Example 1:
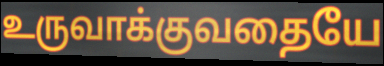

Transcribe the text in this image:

உருவாக்குவதையே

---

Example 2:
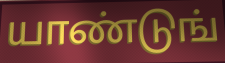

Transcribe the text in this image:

யாண்டுங்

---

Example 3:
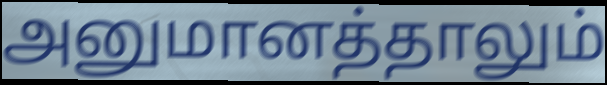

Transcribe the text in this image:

அனுமானத்தாலும்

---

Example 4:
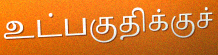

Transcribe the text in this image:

உட்பகுதிக்குச்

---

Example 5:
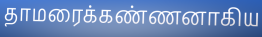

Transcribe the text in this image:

தாமரைக்கண்ணனாகிய